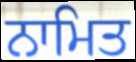
ਨਾਮਿਤ